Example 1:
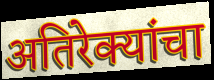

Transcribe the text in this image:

अतिरेक्यांचा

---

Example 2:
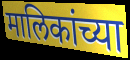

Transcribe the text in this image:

मालिकांच्या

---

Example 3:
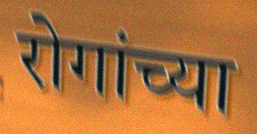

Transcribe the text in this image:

रोगांच्या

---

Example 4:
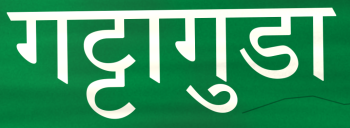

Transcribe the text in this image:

गट्टागुडा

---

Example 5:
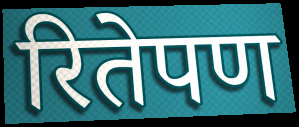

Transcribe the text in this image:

रितेपण